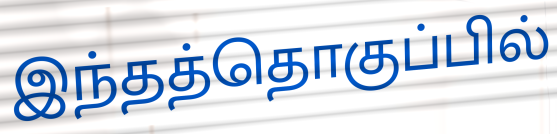
இந்தத்தொகுப்பில்